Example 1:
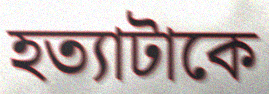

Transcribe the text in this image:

হত্যাটাকে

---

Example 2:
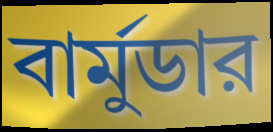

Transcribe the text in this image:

বার্মুডার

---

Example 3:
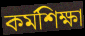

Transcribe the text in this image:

কর্মশিক্ষা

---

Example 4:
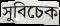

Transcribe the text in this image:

সুবিচেক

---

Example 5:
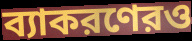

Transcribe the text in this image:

ব্যাকরণেরও